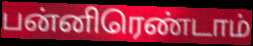
பன்னிரெண்டாம்